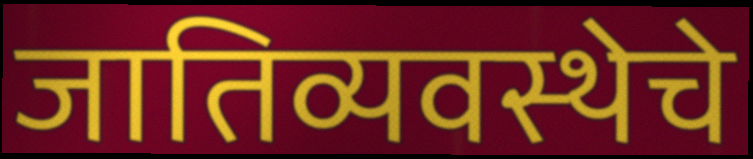
जातिव्यवस्थेचे